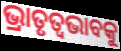
ଭ୍ରାତୃତ୍ୱଭାବକୁ